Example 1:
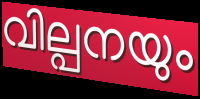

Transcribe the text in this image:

വില്പനയും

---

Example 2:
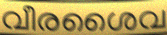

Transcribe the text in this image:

വീരശൈവ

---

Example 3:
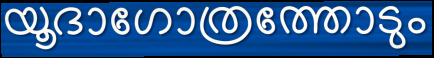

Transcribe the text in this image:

യൂദാഗോത്രത്തോടും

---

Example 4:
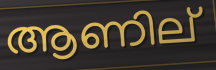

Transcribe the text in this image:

ആണില്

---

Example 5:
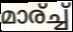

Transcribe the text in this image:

മാര്ച്ച്